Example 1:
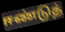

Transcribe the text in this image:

ஈண்டுத்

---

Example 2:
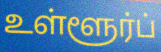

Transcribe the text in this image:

உள்ளூர்ப்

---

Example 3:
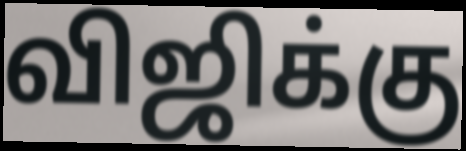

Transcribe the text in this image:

விஜிக்கு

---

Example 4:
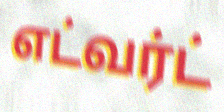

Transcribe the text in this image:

எட்வர்ட்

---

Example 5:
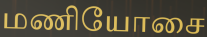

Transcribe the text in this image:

மணியோசை